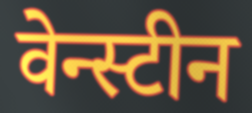
वेन्स्टीन